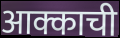
आक्काची